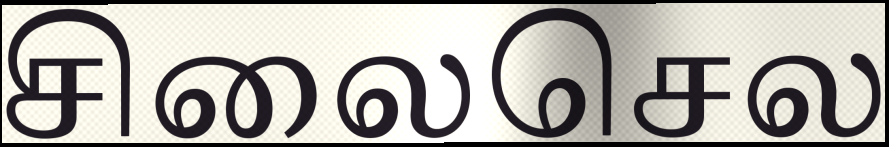
சிலைசெல